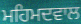
ਮਹਿਮਦਵਾਲ